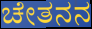
ಚೇತನನ